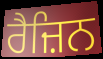
ਰੈਜ਼ਿਨ